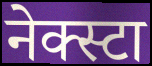
नेक्स्टा